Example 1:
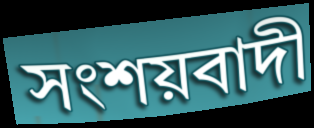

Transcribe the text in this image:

সংশয়বাদী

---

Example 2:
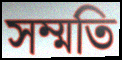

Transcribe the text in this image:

সম্মতি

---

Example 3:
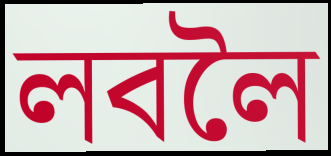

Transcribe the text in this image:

লবলৈ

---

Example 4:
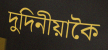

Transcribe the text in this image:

দুদিনীয়াকৈ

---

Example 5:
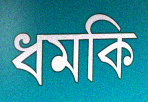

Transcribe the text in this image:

ধমকি